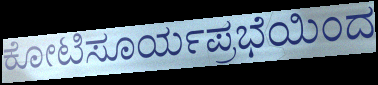
ಕೋಟಿಸೂರ್ಯಪ್ರಭೆಯಿಂದ